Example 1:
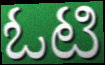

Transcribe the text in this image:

ಓಟಿ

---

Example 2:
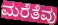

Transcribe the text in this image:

ಮರೆತೆವು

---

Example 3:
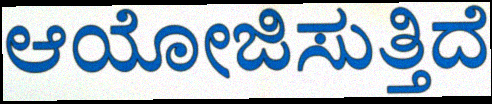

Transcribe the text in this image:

ಆಯೋಜಿಸುತ್ತಿದೆ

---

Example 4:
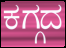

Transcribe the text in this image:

ಕಗ್ಗದ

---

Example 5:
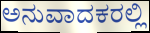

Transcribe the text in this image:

ಅನುವಾದಕರಲ್ಲಿ